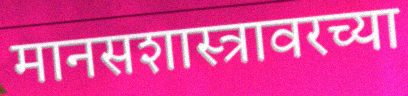
मानसशास्त्रावरच्या